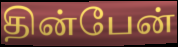
தின்பேன்